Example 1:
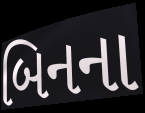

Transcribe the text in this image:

બિનના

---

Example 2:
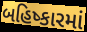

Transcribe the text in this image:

બહિષ્કારમાં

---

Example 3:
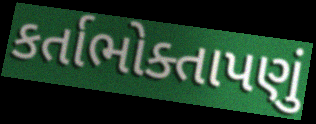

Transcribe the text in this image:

કર્તાભોક્તાપણું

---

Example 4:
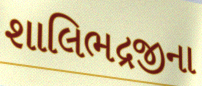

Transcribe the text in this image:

શાલિભદ્રજીના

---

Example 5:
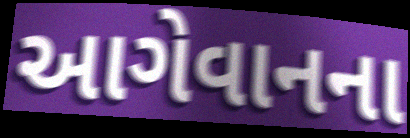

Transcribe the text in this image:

આગેવાનના